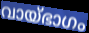
വായ്ഭാഗം